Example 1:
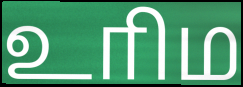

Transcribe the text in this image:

உரிம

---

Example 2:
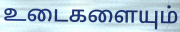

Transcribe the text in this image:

உடைகளையும்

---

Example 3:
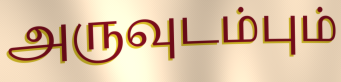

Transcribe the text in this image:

அருவுடம்பும்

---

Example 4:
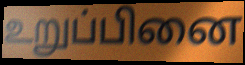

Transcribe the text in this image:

உறுப்பினை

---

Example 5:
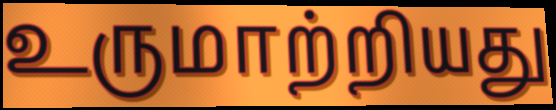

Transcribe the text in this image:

உருமாற்றியது